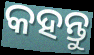
କହନ୍ତୁ